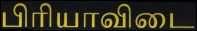
பிரியாவிடை